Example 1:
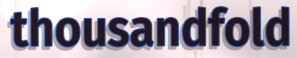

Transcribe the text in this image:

thousandfold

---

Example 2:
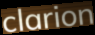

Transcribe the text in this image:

clarion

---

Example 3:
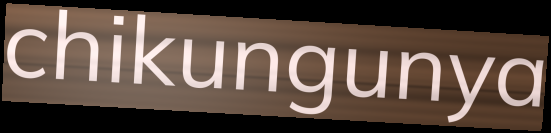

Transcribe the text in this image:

chikungunya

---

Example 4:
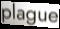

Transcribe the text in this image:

plague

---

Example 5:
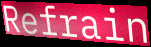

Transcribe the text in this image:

Refrain